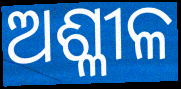
ଅଶ୍ଳୀଳ